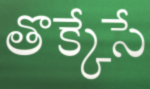
తొక్కేసే